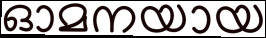
ഓമനയായ